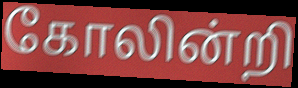
கோலின்றி